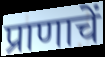
प्राणाचें